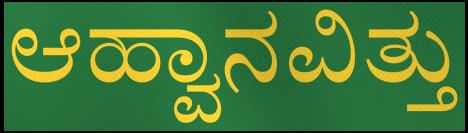
ಆಹ್ವಾನವಿತ್ತು